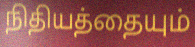
நிதியத்தையும்